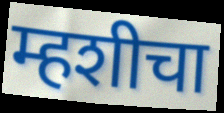
म्हशीचा